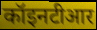
कॉइनटीआर